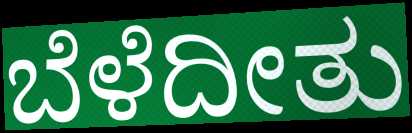
ಬೆಳೆದೀತು